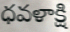
ధవళాక్షి